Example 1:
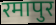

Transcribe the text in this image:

रमापुर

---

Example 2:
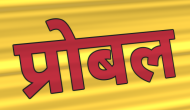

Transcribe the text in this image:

प्रोबल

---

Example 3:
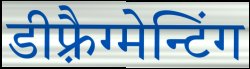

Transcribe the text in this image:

डीफ़्रैग्मेन्टिंग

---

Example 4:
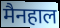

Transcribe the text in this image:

मैनहाल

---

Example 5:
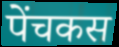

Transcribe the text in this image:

पेंचकस